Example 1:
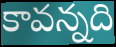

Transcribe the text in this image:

కావన్నది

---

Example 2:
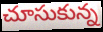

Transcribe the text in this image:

చూసుకున్న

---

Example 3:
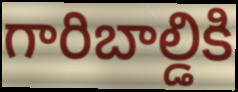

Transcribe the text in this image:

గారిబాల్డికి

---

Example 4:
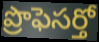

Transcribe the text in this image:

ప్రొఫెసర్తో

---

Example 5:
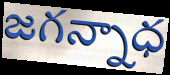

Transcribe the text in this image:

జగన్నాధ